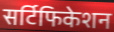
सर्टिफिकेशन